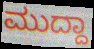
ಮುದ್ದಾ